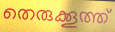
തെരുക്കൂത്ത്